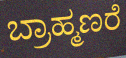
ಬ್ರಾಹ್ಮಣರೆ